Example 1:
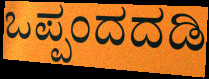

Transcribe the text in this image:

ಒಪ್ಪಂದದಡಿ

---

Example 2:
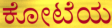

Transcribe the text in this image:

ಕೋಟೆಯ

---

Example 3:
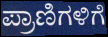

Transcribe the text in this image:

ಪ್ರಾಣಿಗಳಿಗೆ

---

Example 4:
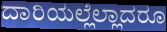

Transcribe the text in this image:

ದಾರಿಯಲ್ಲೆಲ್ಲಾದರೂ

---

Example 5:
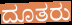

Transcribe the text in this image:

ದೂತರು